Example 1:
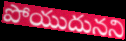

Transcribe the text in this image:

పోయుదునని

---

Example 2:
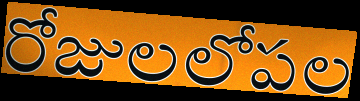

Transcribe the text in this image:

రోజులలోపల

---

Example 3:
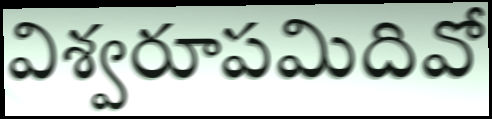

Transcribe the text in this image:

విశ్వరూపమిదివో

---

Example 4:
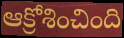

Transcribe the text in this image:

ఆక్రోశించింది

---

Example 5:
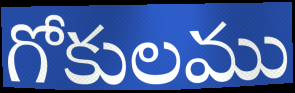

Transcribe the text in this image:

గోకులము